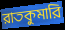
রাতকুমারি